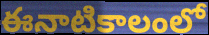
ఈనాటికాలంలో